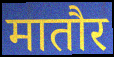
मातौर